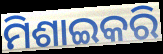
ମିଶାଇକରି